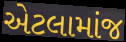
એટલામાંજ